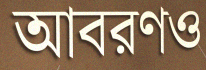
আবরণও